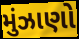
મુંઝાણો